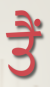
ਤੈਂ